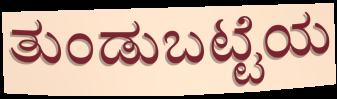
ತುಂಡುಬಟ್ಟೆಯ